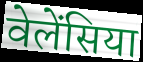
वेलेंसिया